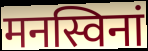
मनस्विनां